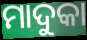
ମାଦୁକା